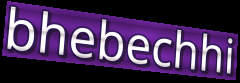
bhebechhi